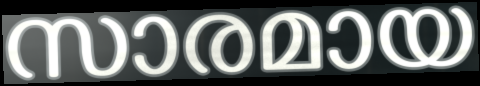
സാരമായ